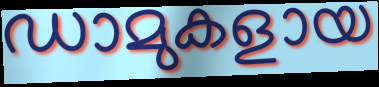
ഡാമുകളായ